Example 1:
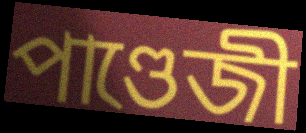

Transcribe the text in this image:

পাণ্ডেজী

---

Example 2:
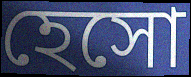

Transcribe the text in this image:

হেসো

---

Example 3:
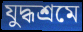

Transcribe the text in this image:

যুদ্ধশ্রমে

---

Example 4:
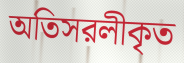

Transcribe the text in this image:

অতিসরলীকৃত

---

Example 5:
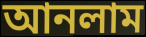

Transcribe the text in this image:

আনলাম